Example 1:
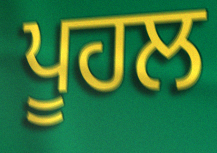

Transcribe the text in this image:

ਪੂਹਲ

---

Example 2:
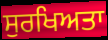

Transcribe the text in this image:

ਸੁਰਖਿਅਤਾ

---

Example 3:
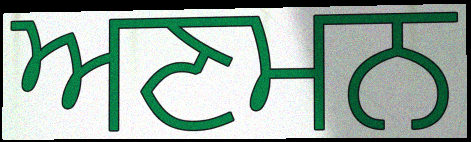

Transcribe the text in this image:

ਅਣਮਨ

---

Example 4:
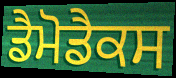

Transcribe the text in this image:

ਡੈਮੋਡੈਕਸ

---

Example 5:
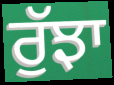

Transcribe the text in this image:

ਰੁੱਝਾ